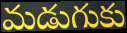
మడుగుకు